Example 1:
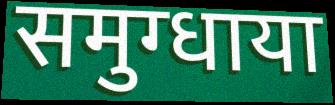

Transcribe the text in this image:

समुग्धाया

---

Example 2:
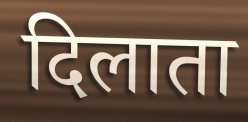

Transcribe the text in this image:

दिलाता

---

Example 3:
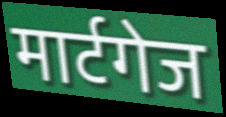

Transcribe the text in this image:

मार्टगेज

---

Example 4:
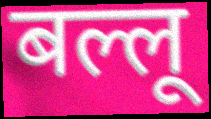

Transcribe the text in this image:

बल्लू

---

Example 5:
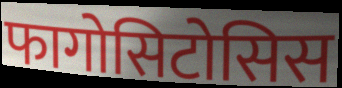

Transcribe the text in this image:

फागोसिटोसिस